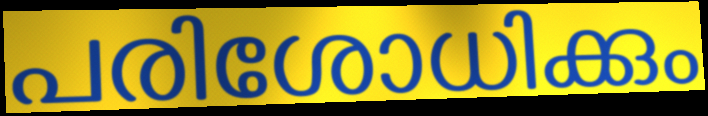
പരിശോധിക്കും